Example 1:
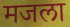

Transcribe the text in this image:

मजला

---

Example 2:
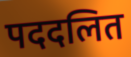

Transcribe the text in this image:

पददलित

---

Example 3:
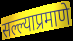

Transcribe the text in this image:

सल्ल्याप्रमाणे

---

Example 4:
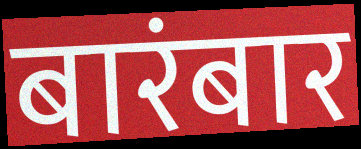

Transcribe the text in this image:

बारंबार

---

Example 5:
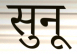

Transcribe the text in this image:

सुनू